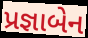
પ્રજ્ઞાબેન